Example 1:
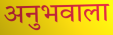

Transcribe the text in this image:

अनुभवाला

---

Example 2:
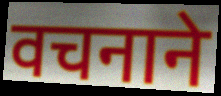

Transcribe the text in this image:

वचनाने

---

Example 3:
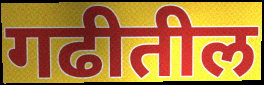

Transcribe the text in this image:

गढीतील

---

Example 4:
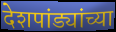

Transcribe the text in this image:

देशपांड्यांच्या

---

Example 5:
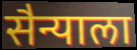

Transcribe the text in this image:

सैन्याला